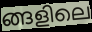
ങ്ങളിലെ